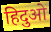
हिदुओ